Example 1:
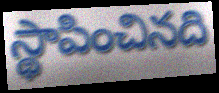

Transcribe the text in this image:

స్థాపించినది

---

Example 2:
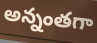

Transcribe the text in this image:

అన్నంతగా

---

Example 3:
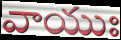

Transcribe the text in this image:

వాయుః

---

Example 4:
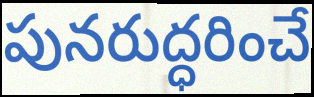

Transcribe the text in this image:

పునరుద్ధరించే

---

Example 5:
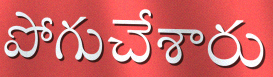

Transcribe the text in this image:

పోగుచేశారు